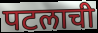
पटलाची